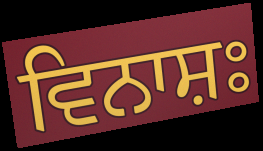
ਵਿਨਾਸ਼ਃ